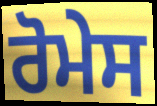
ਰੋਮੇਸ